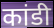
कांडी